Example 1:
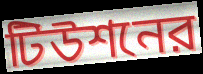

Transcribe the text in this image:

টিউশনের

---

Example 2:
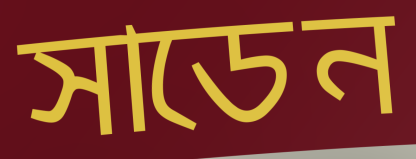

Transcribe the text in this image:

সাডেন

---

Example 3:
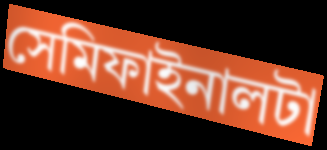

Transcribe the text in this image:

সেমিফাইনালটা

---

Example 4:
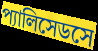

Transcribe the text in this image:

প্যালিসেডসে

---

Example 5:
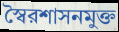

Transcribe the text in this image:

স্বৈরশাসনমুক্ত